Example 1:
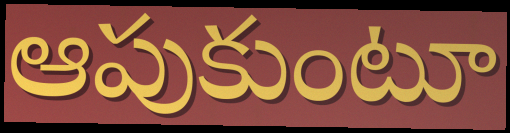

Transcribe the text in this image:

ఆపుకుంటూ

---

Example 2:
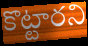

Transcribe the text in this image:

కొట్టారని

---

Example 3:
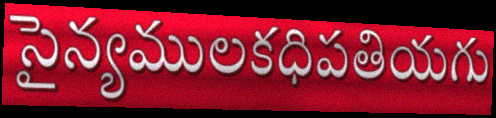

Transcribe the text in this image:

సైన్యములకధిపతియగు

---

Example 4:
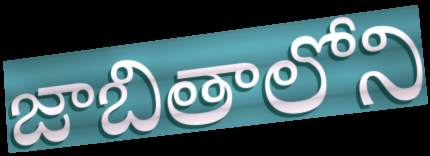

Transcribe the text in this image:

జాబితాలోని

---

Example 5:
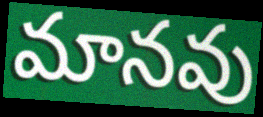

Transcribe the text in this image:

మానవు